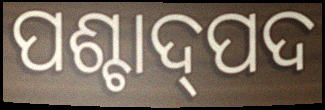
ପଶ୍ଚାଦ୍‍ପଦ